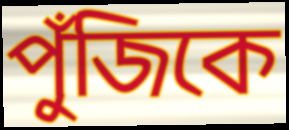
পুঁজিকে